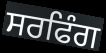
ਸਰਫਿੰਗ